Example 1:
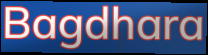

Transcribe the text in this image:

Bagdhara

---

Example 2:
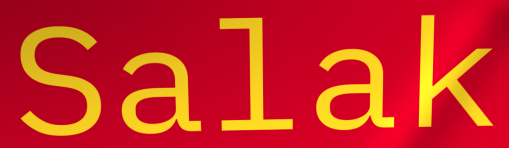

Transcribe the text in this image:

Salak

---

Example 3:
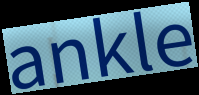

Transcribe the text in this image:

ankle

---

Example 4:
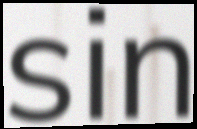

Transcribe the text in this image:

sin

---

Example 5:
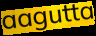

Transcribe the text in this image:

aagutta